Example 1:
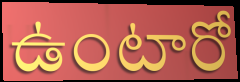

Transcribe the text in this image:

ఉంటారో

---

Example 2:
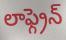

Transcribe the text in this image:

లాఫ్గ్రెన్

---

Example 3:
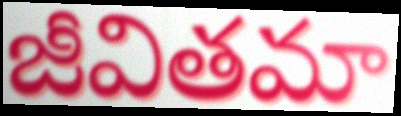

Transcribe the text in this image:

జీవితమా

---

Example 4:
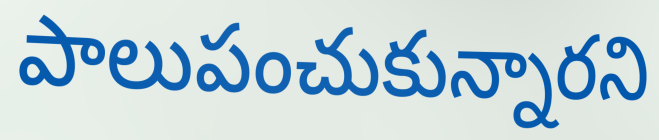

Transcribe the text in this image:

పాలుపంచుకున్నారని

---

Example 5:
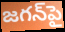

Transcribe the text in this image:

జగన్‌పై